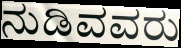
ನುಡಿವವರು